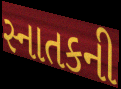
સ્નાતકની